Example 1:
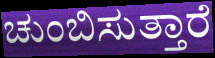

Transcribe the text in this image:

ಚುಂಬಿಸುತ್ತಾರೆ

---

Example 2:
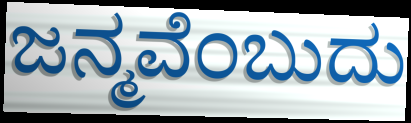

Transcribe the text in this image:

ಜನ್ಮವೆಂಬುದು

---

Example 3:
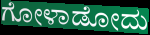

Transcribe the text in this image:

ಗೋಳಾಡೋದು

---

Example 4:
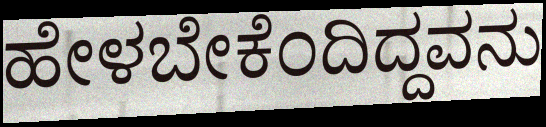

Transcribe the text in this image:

ಹೇಳಬೇಕೆಂದಿದ್ದವನು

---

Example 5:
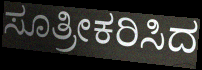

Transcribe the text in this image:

ಸೂತ್ರೀಕರಿಸಿದ